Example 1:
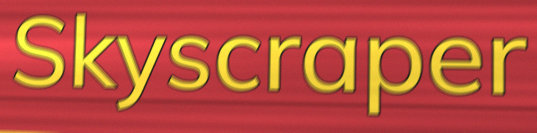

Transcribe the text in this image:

Skyscraper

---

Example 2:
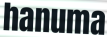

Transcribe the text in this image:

hanuma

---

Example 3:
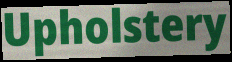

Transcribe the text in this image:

Upholstery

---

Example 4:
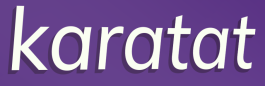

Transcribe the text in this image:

karatat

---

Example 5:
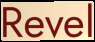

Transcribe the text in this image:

Revel